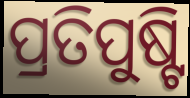
ପ୍ରତିପୁଷ୍ଟି